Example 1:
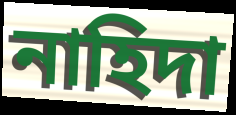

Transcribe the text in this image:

নাহিদা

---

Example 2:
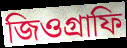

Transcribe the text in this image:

জিওগ্রাফি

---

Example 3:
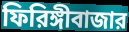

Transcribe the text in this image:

ফিরিঙ্গীবাজার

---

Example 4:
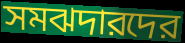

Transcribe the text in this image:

সমঝদারদের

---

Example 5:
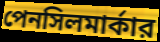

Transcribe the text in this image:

পেনসিলমার্কার